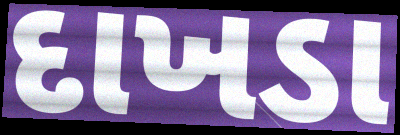
દાખડા